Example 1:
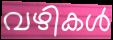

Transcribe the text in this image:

വഴികൾ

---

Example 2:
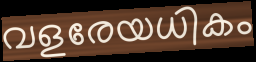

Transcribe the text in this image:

വളരേയധികം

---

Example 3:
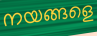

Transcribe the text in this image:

നയങ്ങളെ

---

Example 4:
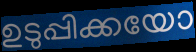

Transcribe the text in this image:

ഉടുപ്പിക്കയോ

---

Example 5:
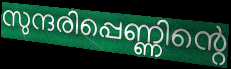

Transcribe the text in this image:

സുന്ദരിപ്പെണ്ണിന്റെ